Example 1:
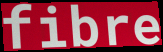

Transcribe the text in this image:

fibre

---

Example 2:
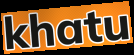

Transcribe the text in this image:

khatu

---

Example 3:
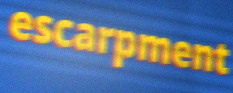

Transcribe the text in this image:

escarpment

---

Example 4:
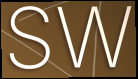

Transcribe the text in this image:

SW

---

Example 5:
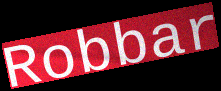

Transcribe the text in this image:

Robbar